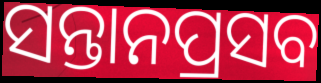
ସନ୍ତାନପ୍ରସବ